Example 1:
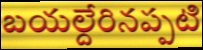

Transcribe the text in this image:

బయల్దేరినప్పటి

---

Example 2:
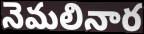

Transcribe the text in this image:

నెమలినార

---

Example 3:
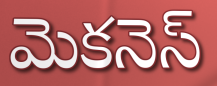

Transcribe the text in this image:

మెకనెస్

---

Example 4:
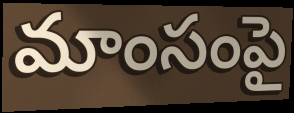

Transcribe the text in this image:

మాంసంపై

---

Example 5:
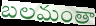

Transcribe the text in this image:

బలమంతా